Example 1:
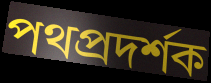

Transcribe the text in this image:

পথপ্রদর্শক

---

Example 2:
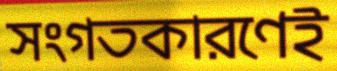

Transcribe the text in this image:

সংগতকারণেই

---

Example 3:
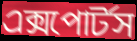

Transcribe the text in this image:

এক্সপোর্টস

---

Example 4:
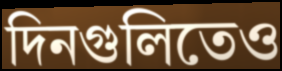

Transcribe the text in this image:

দিনগুলিতেও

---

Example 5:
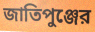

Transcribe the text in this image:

জাতিপুঞ্জের